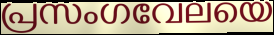
പ്രസംഗവേലയെ